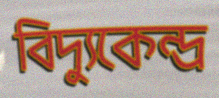
বিদ্যুকেন্দ্র